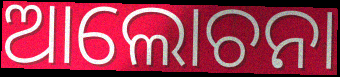
ଆଲୋଚନା